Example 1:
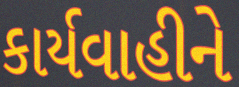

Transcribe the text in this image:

કાર્યવાહીને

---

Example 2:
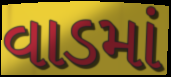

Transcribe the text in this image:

વાડમાં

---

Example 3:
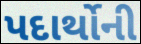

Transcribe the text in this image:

પદાર્થોની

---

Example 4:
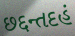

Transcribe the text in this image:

છદ્દન્તદહં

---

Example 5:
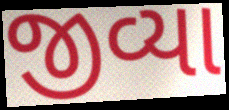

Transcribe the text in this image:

જીવ્યા